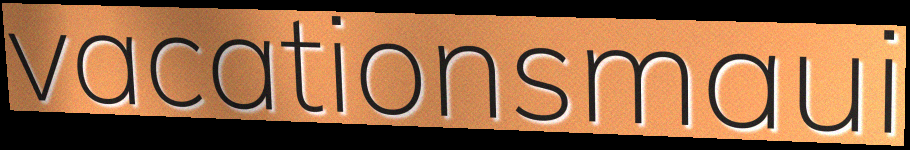
vacationsmaui